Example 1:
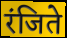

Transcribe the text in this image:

रंजिते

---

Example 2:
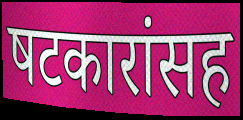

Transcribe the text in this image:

षटकारांसह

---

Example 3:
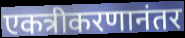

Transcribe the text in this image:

एकत्रीकरणानंतर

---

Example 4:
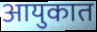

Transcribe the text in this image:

आयुकात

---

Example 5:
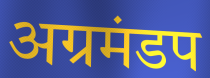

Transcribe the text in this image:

अग्रमंडप